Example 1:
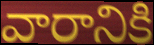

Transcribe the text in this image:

వారానికి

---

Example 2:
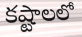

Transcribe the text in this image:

కష్టాలలో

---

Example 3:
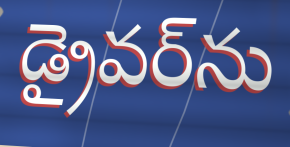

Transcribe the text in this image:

డ్రైవర్‌ను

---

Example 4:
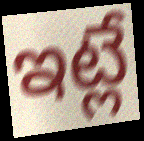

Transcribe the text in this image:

ఇట్లే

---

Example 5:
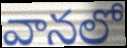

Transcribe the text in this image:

వానలో